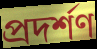
প্ৰদৰ্শণ